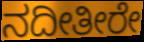
ನದೀತೀರೇ